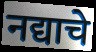
नद्याचे